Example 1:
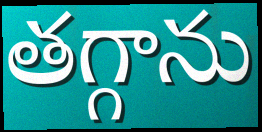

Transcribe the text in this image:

తగ్గాను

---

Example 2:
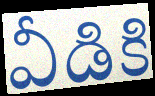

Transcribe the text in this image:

వీడికి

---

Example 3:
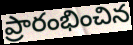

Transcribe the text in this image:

ప్రారంభించిన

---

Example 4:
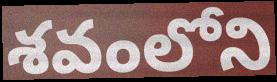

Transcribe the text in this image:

శవంలోని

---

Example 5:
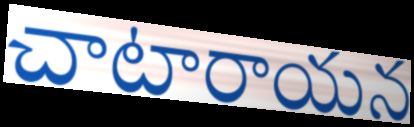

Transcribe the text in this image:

చాటారాయన